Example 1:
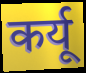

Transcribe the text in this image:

कर्यू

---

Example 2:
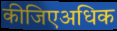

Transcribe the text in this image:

कीजिएअधिक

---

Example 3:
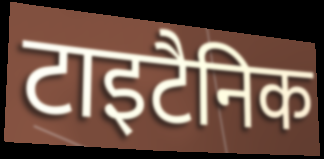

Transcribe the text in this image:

टाइटैनिक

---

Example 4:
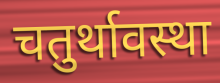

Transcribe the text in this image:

चतुर्थावस्था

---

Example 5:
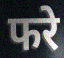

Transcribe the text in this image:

फरे